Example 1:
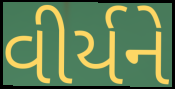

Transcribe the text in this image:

વીર્યને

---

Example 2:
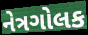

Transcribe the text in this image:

નેત્રગોલક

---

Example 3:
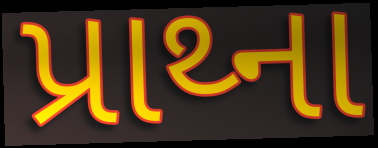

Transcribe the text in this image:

પ્રાથ્ના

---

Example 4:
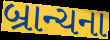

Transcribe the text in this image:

બ્રાન્ચના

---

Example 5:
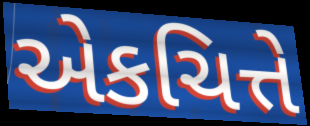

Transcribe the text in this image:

એકચિત્તે